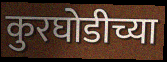
कुरघोडीच्या